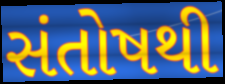
સંતોષથી